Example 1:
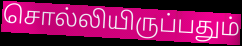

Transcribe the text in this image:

சொல்லியிருப்பதும்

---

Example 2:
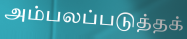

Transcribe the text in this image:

அம்பலப்படுத்தக்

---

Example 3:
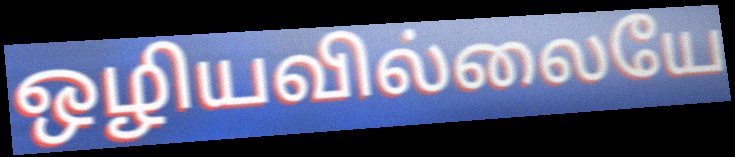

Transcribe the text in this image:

ஒழியவில்லையே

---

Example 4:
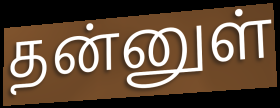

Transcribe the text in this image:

தன்னுள்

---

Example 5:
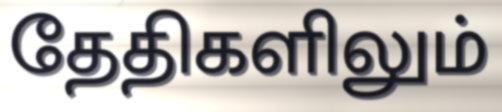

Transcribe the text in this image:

தேதிகளிலும்